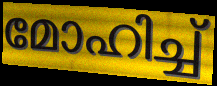
മോഹിച്ച്